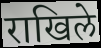
राखिले